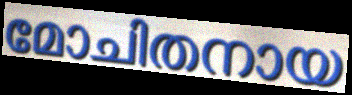
മോചിതനായ